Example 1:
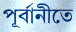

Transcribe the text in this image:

পূর্বানীতে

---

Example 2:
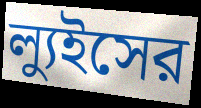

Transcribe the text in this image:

ল্যুইসের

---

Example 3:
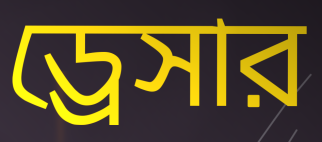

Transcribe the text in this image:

ড্রেসার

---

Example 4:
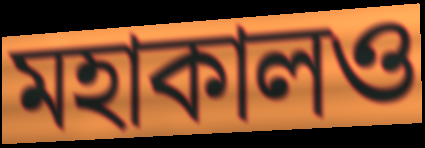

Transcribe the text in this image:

মহাকালও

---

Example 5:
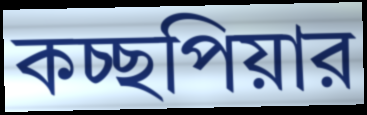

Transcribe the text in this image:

কচ্ছপিয়ার